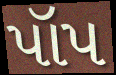
પૉપ